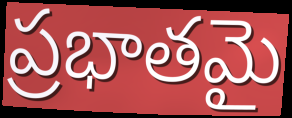
ప్రభాతమై